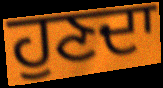
ਹੁਣਦਾ